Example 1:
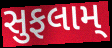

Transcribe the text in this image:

સુફલામ્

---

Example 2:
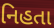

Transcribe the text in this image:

નિહતા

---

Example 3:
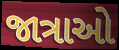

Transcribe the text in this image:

જાત્રાઓ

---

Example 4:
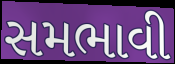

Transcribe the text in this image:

સમભાવી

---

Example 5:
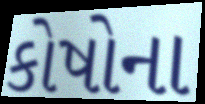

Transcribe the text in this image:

કોષોના